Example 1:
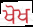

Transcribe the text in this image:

ਖੋਖ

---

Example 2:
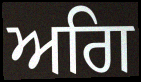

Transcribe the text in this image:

ਅਗਿ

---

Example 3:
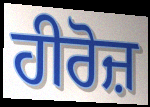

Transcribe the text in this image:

ਹੀਰੋਜ਼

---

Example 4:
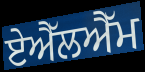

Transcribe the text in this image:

ਏਐੱਲਐੱਮ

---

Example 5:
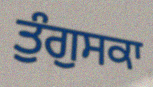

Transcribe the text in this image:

ਤੁੰਗੁਸਕਾ